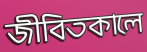
জীবিতকালে